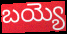
బయ్యె